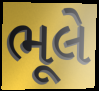
ભૂલે